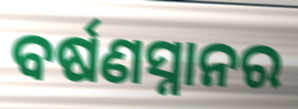
ବର୍ଷଣସ୍ନାନର